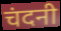
चंदनी